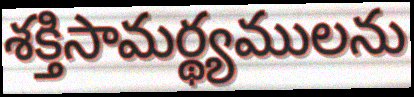
శక్తిసామర్థ్యములను